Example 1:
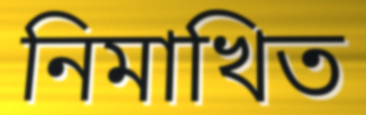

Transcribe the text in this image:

নিমাখিত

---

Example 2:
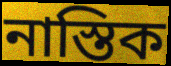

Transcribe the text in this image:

নাস্তিক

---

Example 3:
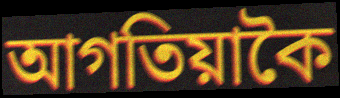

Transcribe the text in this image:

আগতিয়াকৈ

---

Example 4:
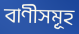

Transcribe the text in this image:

বাণীসমূহ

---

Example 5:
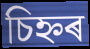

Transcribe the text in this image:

চিহ্নৰ